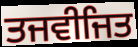
ਤਜਵੀਜਿਤ